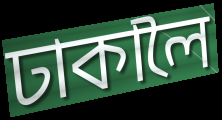
ঢাকালৈ